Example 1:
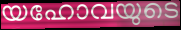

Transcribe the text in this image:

യഹോവയുടെ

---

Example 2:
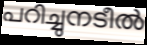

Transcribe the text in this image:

പറിച്ചുനടീൽ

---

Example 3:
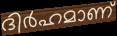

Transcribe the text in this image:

ദിർഹമാണ്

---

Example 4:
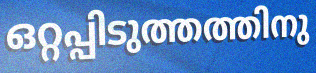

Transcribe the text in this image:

ഒറ്റപ്പിടുത്തത്തിനു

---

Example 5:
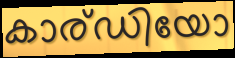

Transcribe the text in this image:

കാര്ഡിയോ